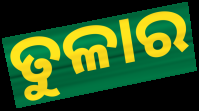
ତୁଳାର